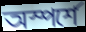
অস্পর্শে